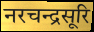
नरचन्द्रसूरि